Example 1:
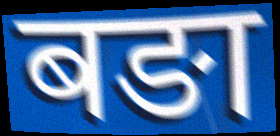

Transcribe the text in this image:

बङा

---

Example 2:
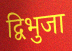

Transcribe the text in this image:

द्विभुजा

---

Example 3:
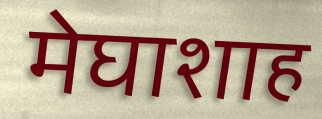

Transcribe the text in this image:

मेघाशाह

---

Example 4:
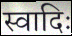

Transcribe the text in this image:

स्वादिः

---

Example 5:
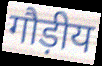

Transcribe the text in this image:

गौड़ीय